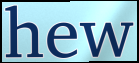
hew